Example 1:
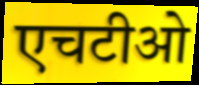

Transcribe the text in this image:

एचटीओ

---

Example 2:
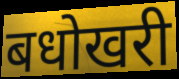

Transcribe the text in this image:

बधोखरी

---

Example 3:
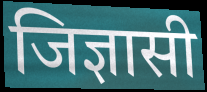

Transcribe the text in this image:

जिज्ञासी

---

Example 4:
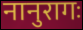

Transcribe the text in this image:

नानुरागः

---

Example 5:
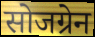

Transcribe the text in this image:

सोजग्रेन